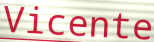
Vicente